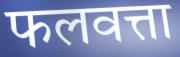
फलवत्ता